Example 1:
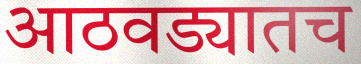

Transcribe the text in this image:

आठवड्यातच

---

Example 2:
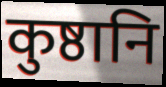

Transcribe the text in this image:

कुष्ठानि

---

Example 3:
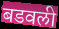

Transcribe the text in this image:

बडवली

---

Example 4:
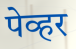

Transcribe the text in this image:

पेव्हर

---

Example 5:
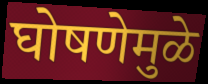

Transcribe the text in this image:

घोषणेमुळे